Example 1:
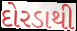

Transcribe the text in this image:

દોરડાથી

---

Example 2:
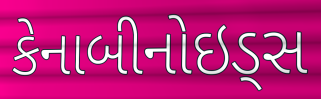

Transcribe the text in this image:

કેનાબીનોઇડ્સ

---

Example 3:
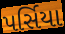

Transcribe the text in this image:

પર્સિયા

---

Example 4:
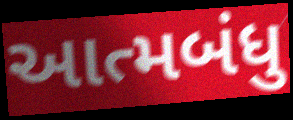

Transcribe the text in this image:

આત્મબંધુ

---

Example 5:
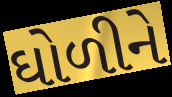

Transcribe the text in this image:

ઘોળીને